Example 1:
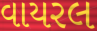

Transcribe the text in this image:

વાયરલ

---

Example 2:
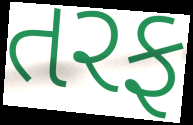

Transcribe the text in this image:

તરફ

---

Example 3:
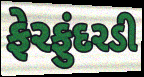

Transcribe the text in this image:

ફેરફુંદરડી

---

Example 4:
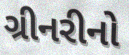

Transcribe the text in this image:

ગ્રીનરીનો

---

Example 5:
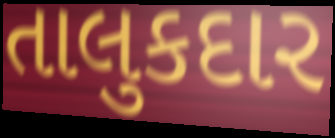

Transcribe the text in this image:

તાલુકદાર